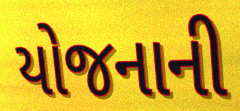
યોજનાની